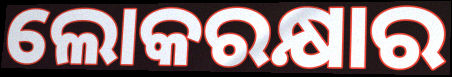
ଲୋକରକ୍ଷାର